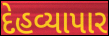
દેહવ્યાપાર